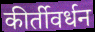
कीर्तीवर्धन